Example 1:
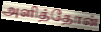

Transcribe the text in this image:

அளித்தோன்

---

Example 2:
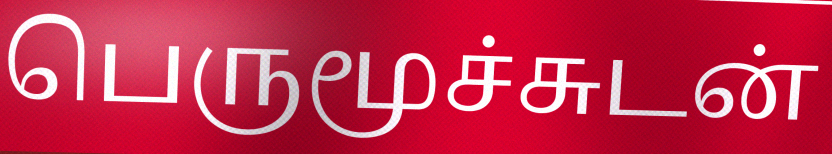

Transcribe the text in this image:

பெருமூச்சுடன்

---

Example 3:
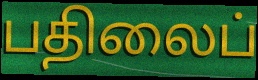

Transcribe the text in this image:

பதிலைப்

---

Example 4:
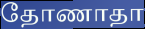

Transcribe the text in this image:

தோணாதா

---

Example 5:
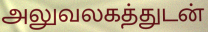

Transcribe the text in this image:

அலுவலகத்துடன்